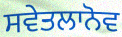
ਸਵੇਤਲਾਨੋਵ